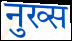
नुख्स